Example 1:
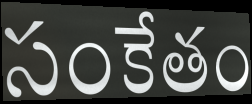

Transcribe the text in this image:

సంకేతం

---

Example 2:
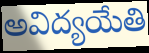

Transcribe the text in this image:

అవిద్యయేతి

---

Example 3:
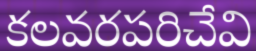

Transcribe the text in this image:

కలవరపరిచేవి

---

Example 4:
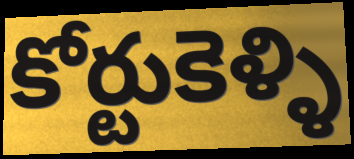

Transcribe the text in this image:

కోర్టుకెళ్ళి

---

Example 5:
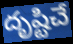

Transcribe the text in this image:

దృష్టిచే